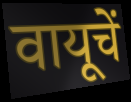
वायूचें